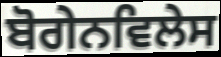
ਬੋਗੇਨਵਿਲੇਸ